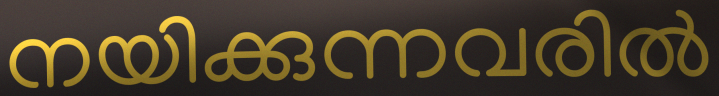
നയിക്കുന്നവരിൽ